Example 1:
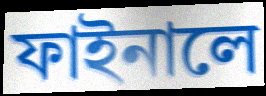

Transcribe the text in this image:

ফাইনালে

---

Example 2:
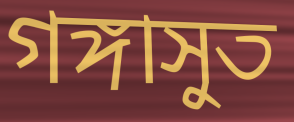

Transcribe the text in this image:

গঙ্গাসুত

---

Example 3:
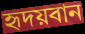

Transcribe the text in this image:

হৃদয়বান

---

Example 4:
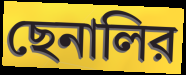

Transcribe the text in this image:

ছেনালির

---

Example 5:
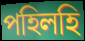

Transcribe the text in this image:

পহিলহি